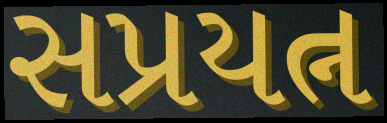
સપ્રયત્ન